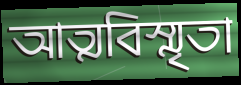
আত্মবিস্মৃতা